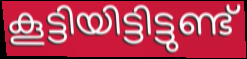
കൂട്ടിയിട്ടിട്ടുണ്ട്